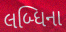
લબ્ધિના